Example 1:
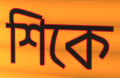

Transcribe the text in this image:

শিকে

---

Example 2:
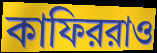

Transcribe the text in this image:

কাফিররাও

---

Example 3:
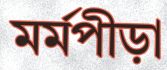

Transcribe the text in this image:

মর্মপীড়া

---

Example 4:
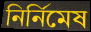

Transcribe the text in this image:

নির্নিমেষ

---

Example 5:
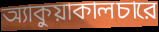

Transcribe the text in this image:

অ্যাকুয়াকালচারে